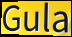
Gula